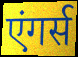
एंगर्स